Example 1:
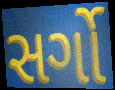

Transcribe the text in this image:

સર્ગો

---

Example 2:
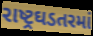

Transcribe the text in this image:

રાષ્ટ્રઘડતરમાં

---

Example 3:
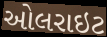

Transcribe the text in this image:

ઓલરાઇટ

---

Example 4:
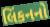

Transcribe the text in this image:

લિંકનનો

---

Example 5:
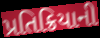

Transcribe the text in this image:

પ્રતિક્રિયાની